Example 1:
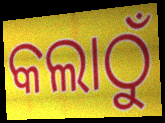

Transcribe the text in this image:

କଲାଠୁଁ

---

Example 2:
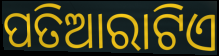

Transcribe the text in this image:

ପତିଆରାଟିଏ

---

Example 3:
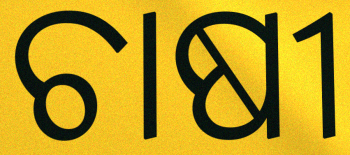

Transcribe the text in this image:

ଚାଷୀ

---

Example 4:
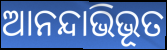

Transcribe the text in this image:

ଆନନ୍ଦାଭିଭୂତ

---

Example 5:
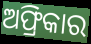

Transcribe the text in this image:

ଅଫ୍ରିକାର